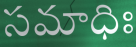
సమాధిః